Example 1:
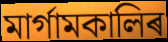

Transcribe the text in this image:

মাৰ্গামকালিৰ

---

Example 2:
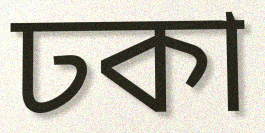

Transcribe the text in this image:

ঢকা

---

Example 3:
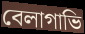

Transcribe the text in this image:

বেলাগাভি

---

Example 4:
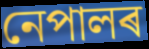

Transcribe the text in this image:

নেপালৰ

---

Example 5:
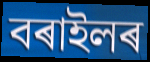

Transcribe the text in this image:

বৰাইলৰ